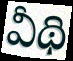
వీథి